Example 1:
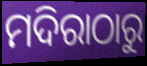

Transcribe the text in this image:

ମଦିରାଠାରୁ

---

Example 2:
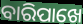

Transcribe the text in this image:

ବାରିପାଖେ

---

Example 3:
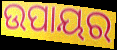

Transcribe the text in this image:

ଉପାୟର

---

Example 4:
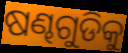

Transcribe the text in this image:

ଷଣ୍ଢଗୁଡିକୁ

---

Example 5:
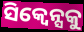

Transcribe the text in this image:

ସିକ୍ୱେନ୍ସକୁ